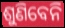
ଶୁଣିବେନି